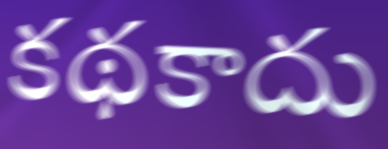
కథకాదు